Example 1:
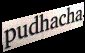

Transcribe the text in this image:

pudhacha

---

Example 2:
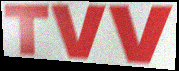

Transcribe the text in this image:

TVV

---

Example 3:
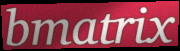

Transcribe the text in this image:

bmatrix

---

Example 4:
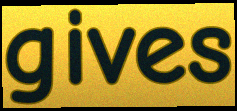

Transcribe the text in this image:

gives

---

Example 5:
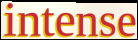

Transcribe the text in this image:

intense